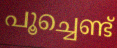
പൂച്ചെണ്ട്